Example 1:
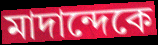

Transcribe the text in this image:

মাদান্দেকে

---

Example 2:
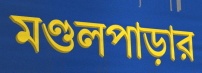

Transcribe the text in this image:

মণ্ডলপাড়ার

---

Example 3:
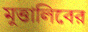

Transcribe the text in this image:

মুত্তালিবের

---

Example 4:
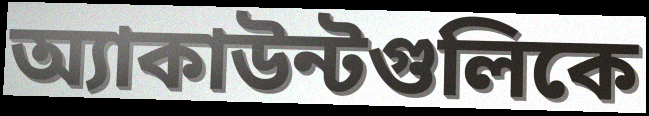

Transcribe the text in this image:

অ্যাকাউন্টগুলিকে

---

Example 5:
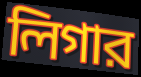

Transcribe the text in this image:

লিগার